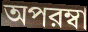
অপরম্বা